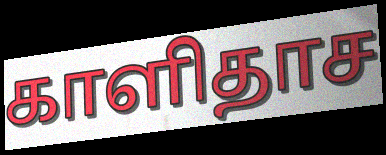
காளிதாச